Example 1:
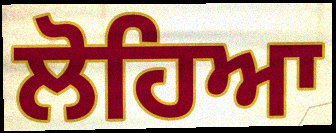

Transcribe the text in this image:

ਲੋਹਿਆ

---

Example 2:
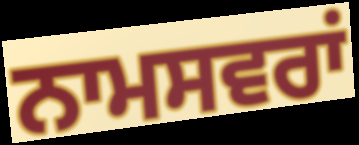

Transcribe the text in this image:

ਨਾਮਸਵਰਾਂ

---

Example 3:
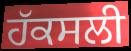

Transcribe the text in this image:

ਹੱਕਸਲੀ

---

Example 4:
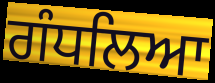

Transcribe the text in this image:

ਗੰਧਲਿਆ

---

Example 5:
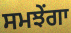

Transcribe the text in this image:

ਸਮਝੇਂਗਾ